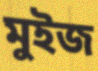
মুইজ